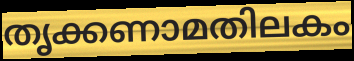
തൃക്കണാമതിലകം